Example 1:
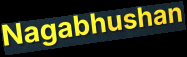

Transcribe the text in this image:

Nagabhushan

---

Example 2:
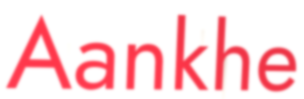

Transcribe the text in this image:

Aankhe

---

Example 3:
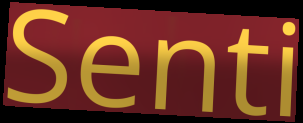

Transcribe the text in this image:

Senti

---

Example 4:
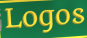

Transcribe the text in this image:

Logos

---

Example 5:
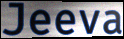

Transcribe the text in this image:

Jeeva